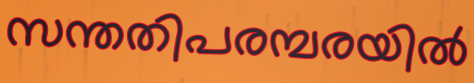
സന്തതിപരമ്പരയിൽ